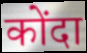
कोंदा